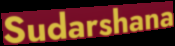
Sudarshana